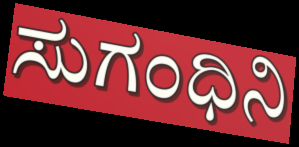
ಸುಗಂಧಿನಿ